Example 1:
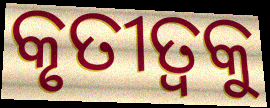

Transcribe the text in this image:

କୃତୀତ୍ଵକୁ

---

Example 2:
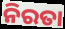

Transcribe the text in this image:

ନିରତା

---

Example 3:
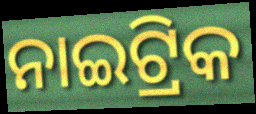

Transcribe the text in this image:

ନାଇଟ୍ରିକ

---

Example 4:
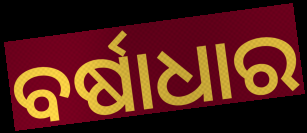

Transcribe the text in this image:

ବର୍ଷାଧାର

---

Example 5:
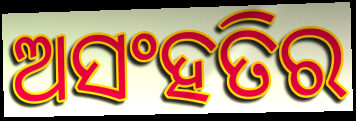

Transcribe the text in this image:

ଅସଂହତିର